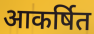
आकर्षित